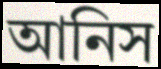
আনিস